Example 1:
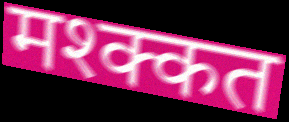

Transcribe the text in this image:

मश्क्कत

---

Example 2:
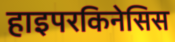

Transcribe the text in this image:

हाइपरकिनेसिस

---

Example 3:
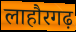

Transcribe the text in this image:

लाहौरगढ़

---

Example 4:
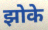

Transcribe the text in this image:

झोके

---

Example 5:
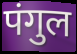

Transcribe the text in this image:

पंगुल